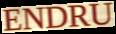
ENDRU